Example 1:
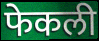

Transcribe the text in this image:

फेकली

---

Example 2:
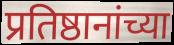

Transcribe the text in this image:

प्रतिष्ठानांच्या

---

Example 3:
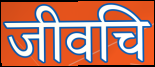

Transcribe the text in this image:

जीवचि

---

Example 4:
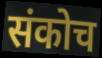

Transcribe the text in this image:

संकोच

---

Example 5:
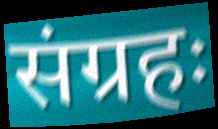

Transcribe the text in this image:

संग्रहः